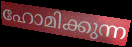
ഹോമിക്കുന്ന